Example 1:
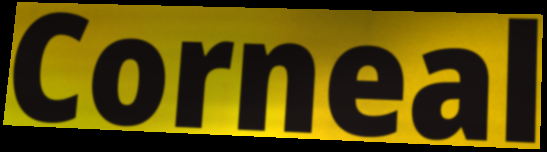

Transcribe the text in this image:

Corneal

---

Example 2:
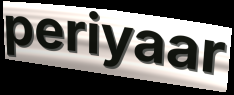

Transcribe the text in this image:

periyaar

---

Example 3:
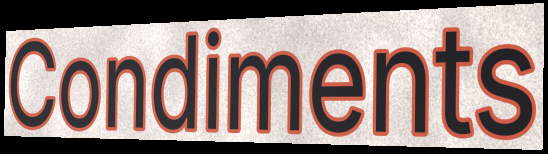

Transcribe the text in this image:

Condiments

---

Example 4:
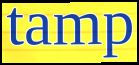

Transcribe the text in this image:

tamp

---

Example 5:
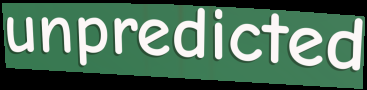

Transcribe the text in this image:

unpredicted